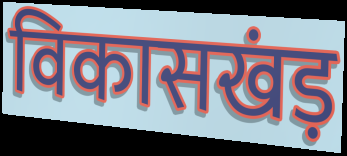
विकासखंड़